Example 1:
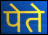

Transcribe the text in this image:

पेते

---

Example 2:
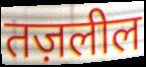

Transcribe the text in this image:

तज़लील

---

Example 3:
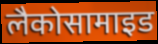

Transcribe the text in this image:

लैकोसामाइड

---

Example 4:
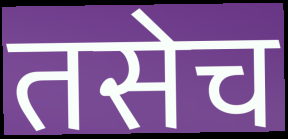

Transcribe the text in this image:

तसेच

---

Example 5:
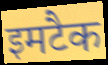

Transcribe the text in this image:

इमटैक